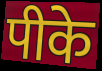
पीके